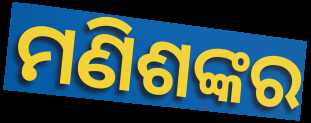
ମଣିଶଙ୍କର